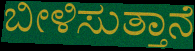
ಬೀಳಿಸುತ್ತಾನೆ